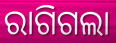
ରାଗିଗଲା